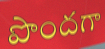
పొందగా